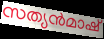
സത്യൻമാഷ്